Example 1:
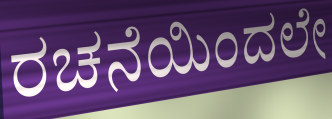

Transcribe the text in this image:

ರಚನೆಯಿಂದಲೇ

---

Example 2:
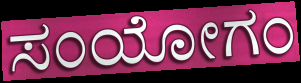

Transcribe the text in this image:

ಸಂಯೋಗಂ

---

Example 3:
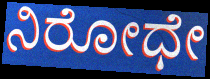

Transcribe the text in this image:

ನಿರೋಧೇ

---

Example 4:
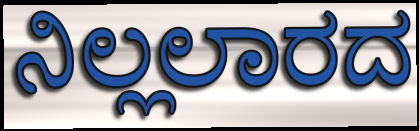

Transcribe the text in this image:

ನಿಲ್ಲಲಾರದ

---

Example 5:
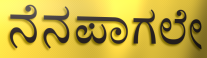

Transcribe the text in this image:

ನೆನಪಾಗಲೇ